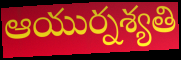
ఆయుర్నశ్యతి